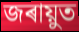
জৰায়ুত